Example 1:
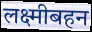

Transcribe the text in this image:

लक्ष्मीबहन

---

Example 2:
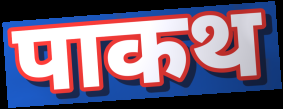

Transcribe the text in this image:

पाकथ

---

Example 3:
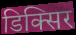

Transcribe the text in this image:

डिक्सिर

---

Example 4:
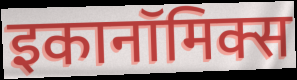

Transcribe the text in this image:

इकानॉमिक्स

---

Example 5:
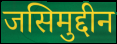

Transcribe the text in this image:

जसिमुद्दीन